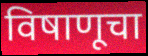
विषाणूचा